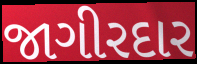
જાગીરદાર